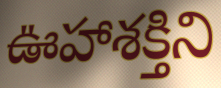
ఊహాశక్తిని